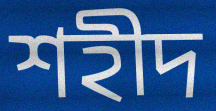
শহীদ